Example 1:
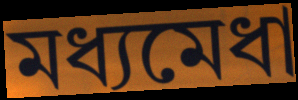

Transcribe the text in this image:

মধ্যমেধা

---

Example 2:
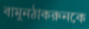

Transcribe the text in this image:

বামুনঠাকরুনকে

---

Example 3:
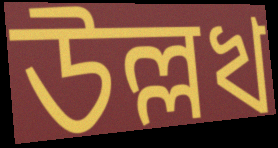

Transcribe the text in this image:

উল্লখ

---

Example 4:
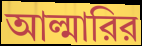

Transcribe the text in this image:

আল্মারির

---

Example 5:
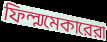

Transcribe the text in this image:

ফিল্মমেকারেরা